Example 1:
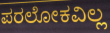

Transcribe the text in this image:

ಪರಲೋಕವಿಲ್ಲ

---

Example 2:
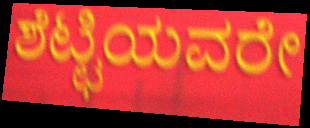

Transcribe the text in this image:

ಶೆಟ್ಟಿಯವರೇ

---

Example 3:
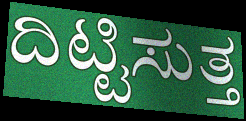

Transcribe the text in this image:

ದಿಟ್ಟಿಸುತ್ತ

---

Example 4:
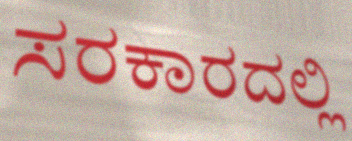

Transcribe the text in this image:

ಸರಕಾರದಲ್ಲಿ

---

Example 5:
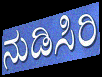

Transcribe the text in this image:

ನುಡಿಸಿರಿ